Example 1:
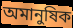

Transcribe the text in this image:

অমানুষিক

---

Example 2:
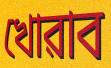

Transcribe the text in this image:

খোৱাব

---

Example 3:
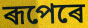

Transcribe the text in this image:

ৰূপেৰে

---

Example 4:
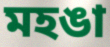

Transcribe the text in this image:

মহঙা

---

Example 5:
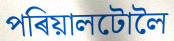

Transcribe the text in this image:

পৰিয়ালটোলৈ